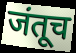
जंतूच